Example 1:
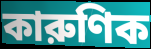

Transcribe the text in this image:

কারুণিক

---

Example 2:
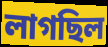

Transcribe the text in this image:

লাগছিল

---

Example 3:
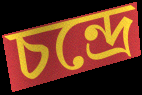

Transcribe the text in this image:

চন্দ্রে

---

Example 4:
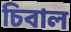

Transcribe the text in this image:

চিবাল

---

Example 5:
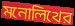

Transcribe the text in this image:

মনোলিথের